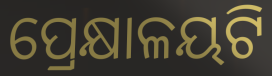
ପ୍ରେକ୍ଷାଳୟଟି